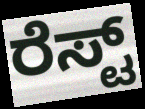
ರೆಸ್ಟ್